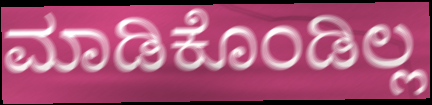
ಮಾಡಿಕೊಂಡಿಲ್ಲ